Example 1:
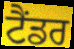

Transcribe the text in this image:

ਟੈਂਡਰ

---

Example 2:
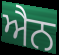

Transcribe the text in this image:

ਐਨ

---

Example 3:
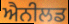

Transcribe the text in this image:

ਐਨੀਲਡ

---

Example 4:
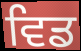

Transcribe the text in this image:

ਵਿਡ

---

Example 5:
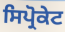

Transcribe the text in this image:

ਸਿਪ੍ਰੋਕੇਟ